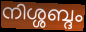
നിശ്ശബ്ദം